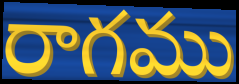
రాగము